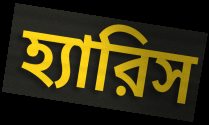
হ্যারিস